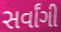
સર્વાંગી